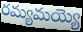
రమ్యమయ్యె